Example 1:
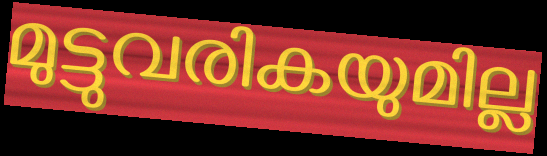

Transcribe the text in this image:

മുട്ടുവരികയുമില്ല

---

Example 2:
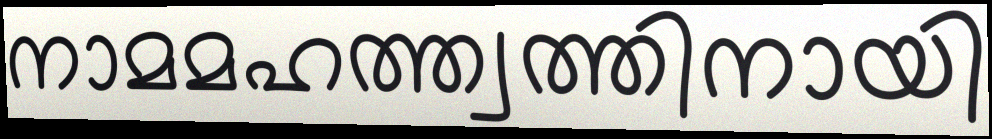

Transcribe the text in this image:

നാമമഹത്ത്വത്തിനായി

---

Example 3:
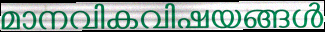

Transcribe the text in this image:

മാനവികവിഷയങ്ങൾ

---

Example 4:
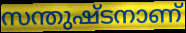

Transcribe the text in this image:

സന്തുഷ്ടനാണ്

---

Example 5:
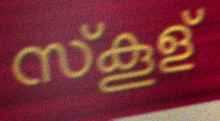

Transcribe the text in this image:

സ്കൂള്